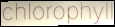
chlorophyll